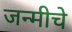
जन्मीचे